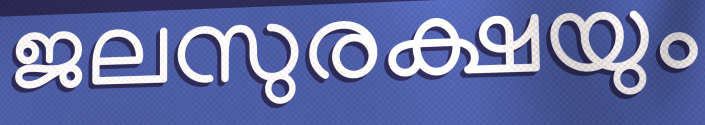
ജലസുരക്ഷയും